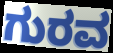
ಗುರವ